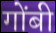
गोंबी